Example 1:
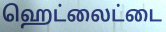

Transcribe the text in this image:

ஹெட்லைட்டை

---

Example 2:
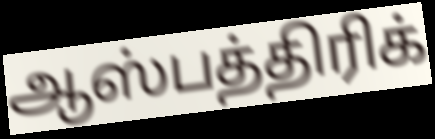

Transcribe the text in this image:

ஆஸ்பத்திரிக்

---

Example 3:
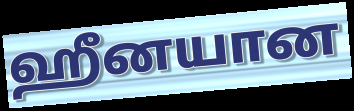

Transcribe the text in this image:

ஹீனயான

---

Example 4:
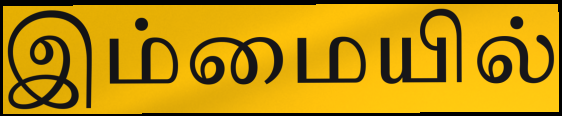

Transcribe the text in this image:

இம்மையில்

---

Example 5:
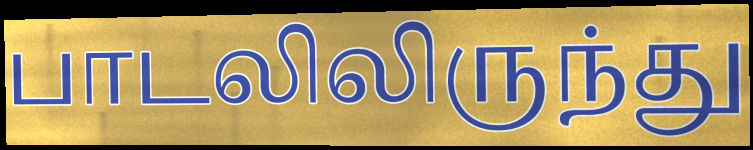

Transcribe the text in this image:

பாடலிலிருந்து